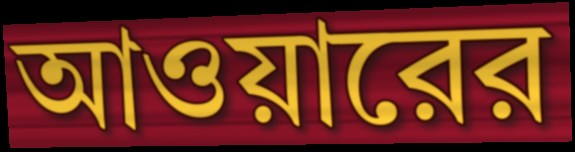
আওয়ারের